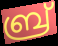
ബ്ര്